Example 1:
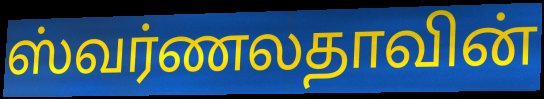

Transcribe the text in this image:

ஸ்வர்ணலதாவின்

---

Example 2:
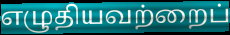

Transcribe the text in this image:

எழுதியவற்றைப்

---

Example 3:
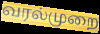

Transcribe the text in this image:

வரல்முறை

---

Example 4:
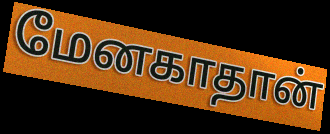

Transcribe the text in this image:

மேனகாதான்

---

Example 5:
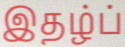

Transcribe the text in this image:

இதழ்ப்